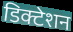
डिक्टेशन